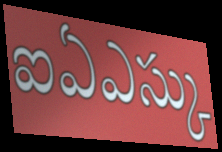
ఐఏఎస్కు